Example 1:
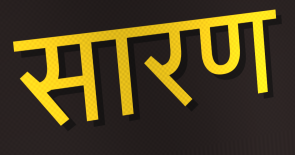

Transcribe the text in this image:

सारण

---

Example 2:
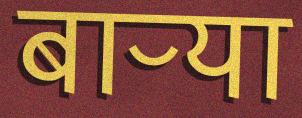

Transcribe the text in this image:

बाऱ्या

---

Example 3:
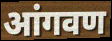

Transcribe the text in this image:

आंगवण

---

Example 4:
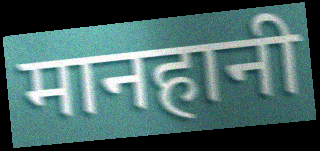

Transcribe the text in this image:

मानहानी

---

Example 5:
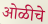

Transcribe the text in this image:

ओळीचे